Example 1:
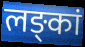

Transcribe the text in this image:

लङ्कां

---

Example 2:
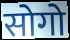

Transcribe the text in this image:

सोगो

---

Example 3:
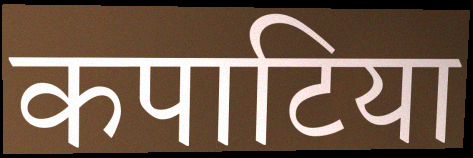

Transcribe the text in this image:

कपाटिया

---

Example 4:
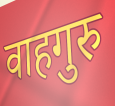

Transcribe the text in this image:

वाहगुरु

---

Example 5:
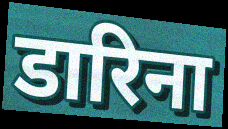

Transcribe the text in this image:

डारिना